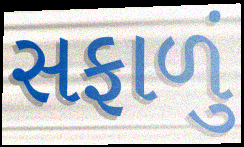
સફાળું